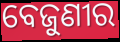
ବେଜୁଣୀର